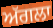
ਅੱਗਲਾ